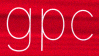
gpc